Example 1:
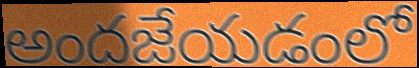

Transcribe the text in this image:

అందజేయడంలో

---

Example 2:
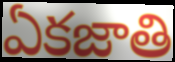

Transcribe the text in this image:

ఏకజాతి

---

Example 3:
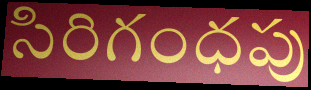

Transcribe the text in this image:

సిరిగంధపు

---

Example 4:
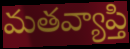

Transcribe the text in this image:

మతవ్యాప్తి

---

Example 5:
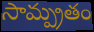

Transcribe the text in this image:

సామ్ప్రతం